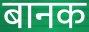
बानक